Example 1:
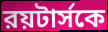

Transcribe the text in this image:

রয়টার্সকে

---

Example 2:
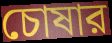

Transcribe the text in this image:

চোষার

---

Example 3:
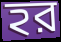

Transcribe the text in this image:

হর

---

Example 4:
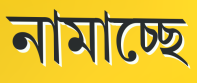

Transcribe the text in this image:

নামাচ্ছে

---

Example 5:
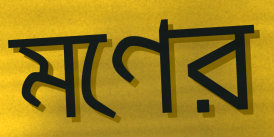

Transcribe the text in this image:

মণের